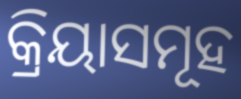
କ୍ରିୟାସମୂହ